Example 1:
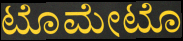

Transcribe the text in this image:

ಟೊಮೇಟೊ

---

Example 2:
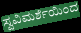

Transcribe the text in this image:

ಸ್ವವಿಮರ್ಶೆಯಿಂದ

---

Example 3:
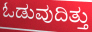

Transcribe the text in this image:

ಓಡುವುದಿತ್ತು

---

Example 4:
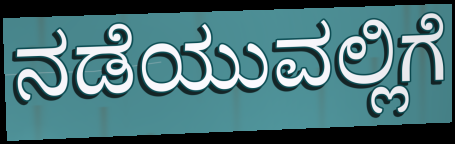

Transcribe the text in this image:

ನಡೆಯುವಲ್ಲಿಗೆ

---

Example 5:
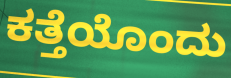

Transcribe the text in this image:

ಕತ್ತೆಯೊಂದು